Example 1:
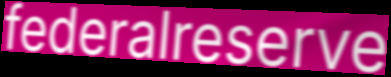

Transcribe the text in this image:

federalreserve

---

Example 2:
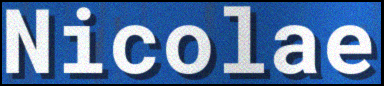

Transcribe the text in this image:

Nicolae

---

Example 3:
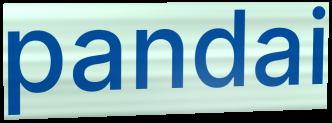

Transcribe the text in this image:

pandai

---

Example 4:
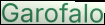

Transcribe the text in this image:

Garofalo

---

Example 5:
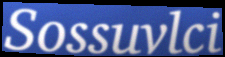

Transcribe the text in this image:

Sossuvlci